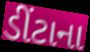
ડીંટાના